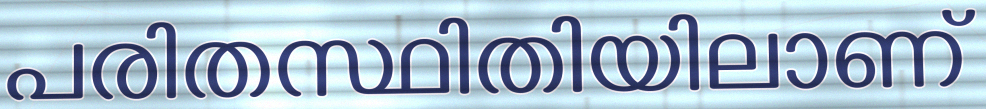
പരിതസ്ഥിതിയിലാണ്